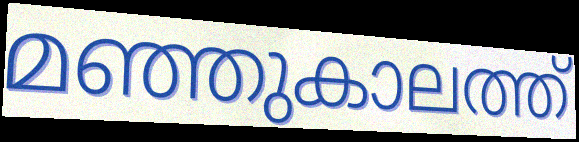
മഞ്ഞുകാലത്ത്